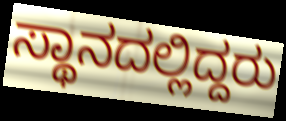
ಸ್ಥಾನದಲ್ಲಿದ್ದರು